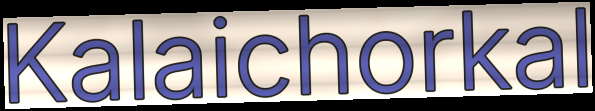
Kalaichorkal